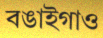
বঙাইগাও